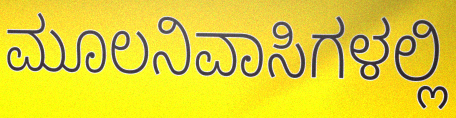
ಮೂಲನಿವಾಸಿಗಳಲ್ಲಿ